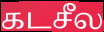
கடசீல